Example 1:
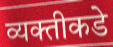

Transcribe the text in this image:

व्यक्तीकडे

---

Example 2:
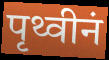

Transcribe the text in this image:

पृथ्वीनं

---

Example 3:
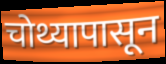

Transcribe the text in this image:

चोथ्यापासून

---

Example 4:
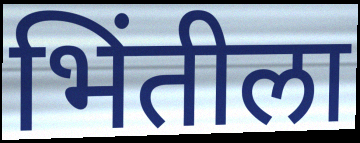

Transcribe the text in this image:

भिंतीला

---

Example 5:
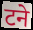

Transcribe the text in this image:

टने